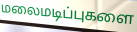
மலைமடிப்புகளை